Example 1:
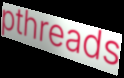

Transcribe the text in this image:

pthreads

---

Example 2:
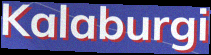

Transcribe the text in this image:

Kalaburgi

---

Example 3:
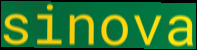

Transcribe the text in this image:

sinova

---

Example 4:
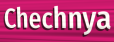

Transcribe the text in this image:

Chechnya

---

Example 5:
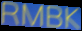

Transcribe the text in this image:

RMBK